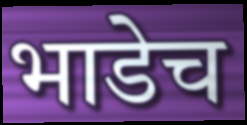
भाडेच